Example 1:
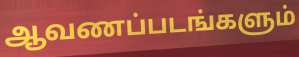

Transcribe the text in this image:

ஆவணப்படங்களும்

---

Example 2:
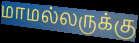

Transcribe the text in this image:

மாமல்லருக்கு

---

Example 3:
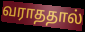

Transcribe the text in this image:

வராததால்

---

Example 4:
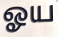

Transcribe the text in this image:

ஓய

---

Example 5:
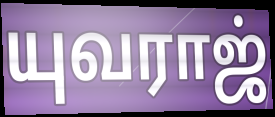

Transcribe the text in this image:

யுவராஜ்